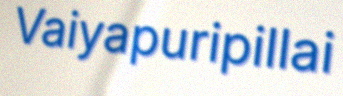
Vaiyapuripillai